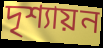
দৃশ্যায়ন